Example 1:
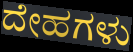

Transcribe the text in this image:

ದೇಹಗಳು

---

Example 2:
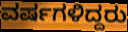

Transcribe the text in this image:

ವರ್ಷಗಳಿದ್ದರು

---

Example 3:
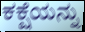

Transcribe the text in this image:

ಕಕ್ಷೆಯನ್ನು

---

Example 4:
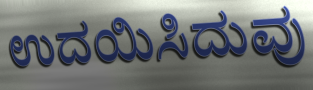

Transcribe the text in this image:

ಉದಯಿಸಿದುವು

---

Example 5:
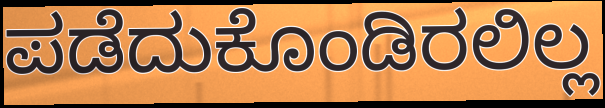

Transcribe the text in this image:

ಪಡೆದುಕೊಂಡಿರಲಿಲ್ಲ